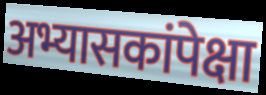
अभ्यासकांपेक्षा